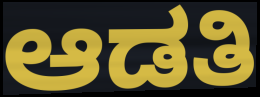
ಆಡತಿ